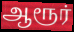
ஆரூர்